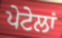
ਪੇਟੇਲਾਂ